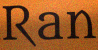
Ran